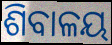
ଶିବାଳୟ